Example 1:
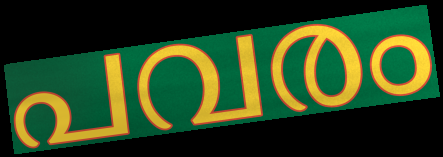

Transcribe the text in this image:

പവരം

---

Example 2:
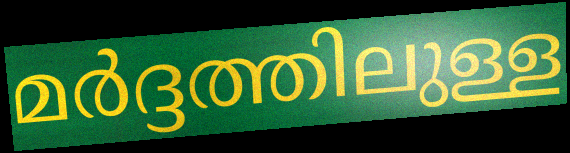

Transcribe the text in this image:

മർദ്ദത്തിലുള്ള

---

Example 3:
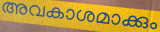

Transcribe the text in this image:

അവകാശമാക്കും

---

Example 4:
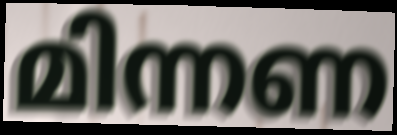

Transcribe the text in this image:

മിന്നണ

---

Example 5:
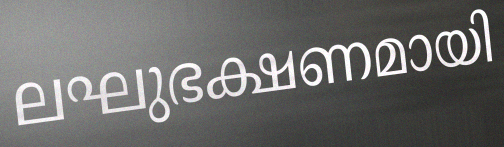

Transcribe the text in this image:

ലഘുഭക്ഷണമായി